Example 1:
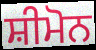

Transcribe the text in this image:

ਸ਼ੀਮੋਨ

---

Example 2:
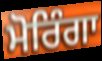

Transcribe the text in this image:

ਮੋਰਿੰਗਾ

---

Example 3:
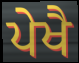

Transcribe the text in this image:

ਪੇਖੈ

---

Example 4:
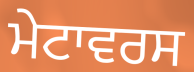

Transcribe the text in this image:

ਮੇਟਾਵਰਸ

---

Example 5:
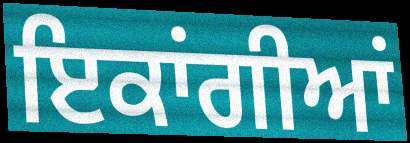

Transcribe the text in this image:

ਇਕਾਂਗੀਆਂ